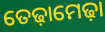
ତେଢ଼ାମେଢ଼ା